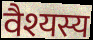
वैश्यस्य